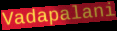
Vadapalani